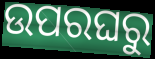
ଉପରଘରୁ